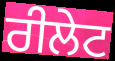
ਰੀਲੇਟ